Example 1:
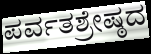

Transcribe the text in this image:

ಪರ್ವತಶ್ರೇಷ್ಠದ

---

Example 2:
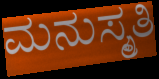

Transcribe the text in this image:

ಮನುಸ್ಮೃತಿ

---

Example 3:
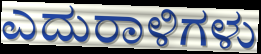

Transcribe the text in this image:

ಎದುರಾಳಿಗಳು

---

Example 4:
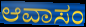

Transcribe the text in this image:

ಆವಾಸಂ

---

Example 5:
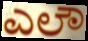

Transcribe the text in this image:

ಎಲೌ